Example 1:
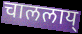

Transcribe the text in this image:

चाललाय्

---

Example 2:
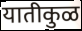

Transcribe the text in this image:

यातीकुळ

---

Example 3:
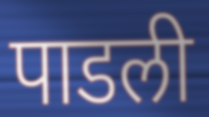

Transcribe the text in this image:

पाडली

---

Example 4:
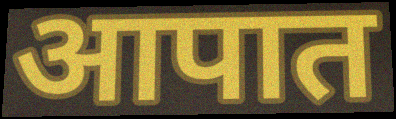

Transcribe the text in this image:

आपात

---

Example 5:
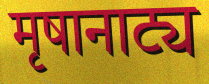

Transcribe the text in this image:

मृषानाट्य